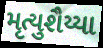
મૃત્યુશૈય્યા